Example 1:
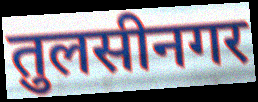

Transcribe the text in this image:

तुलसीनगर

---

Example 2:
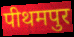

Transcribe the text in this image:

पीथमपुर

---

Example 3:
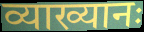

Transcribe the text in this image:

व्याख्यानः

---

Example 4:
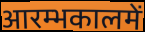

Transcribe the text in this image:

आरम्भकालमें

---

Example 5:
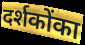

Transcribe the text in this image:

दर्शकोंका